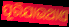
ପୂରିଯାଉଥାଏ